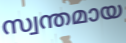
സ്വന്തമായ